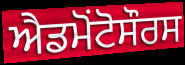
ਐਡਮੋਂਟੋਸੌਰਸ